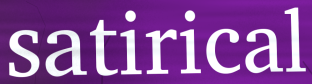
satirical